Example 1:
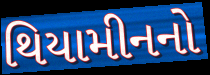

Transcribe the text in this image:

થિયામીનનો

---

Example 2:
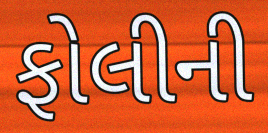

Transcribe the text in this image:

ફોલીની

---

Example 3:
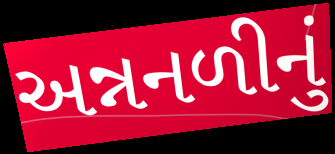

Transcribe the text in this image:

અન્નનળીનું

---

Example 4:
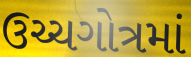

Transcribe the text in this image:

ઉચ્ચગોત્રમાં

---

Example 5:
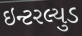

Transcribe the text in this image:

ઇન્ટરલ્યુડ